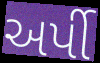
અર્પી